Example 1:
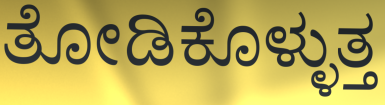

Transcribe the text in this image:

ತೋಡಿಕೊಳ್ಳುತ್ತ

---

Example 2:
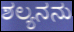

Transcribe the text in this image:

ಶಲ್ಯನನು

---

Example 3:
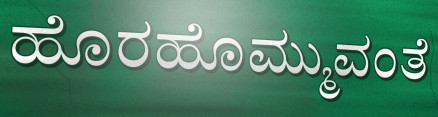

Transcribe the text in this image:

ಹೊರಹೊಮ್ಮುವಂತೆ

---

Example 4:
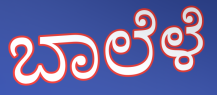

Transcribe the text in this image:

ಬಾಲೆಳೆ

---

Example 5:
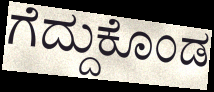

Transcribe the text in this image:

ಗೆದ್ದುಕೊಂಡ